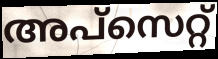
അപ്സെറ്റ്